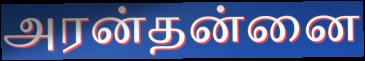
அரன்தன்னை